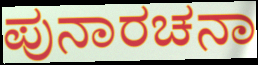
ಪುನಾರಚನಾ